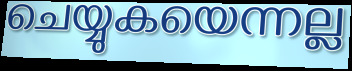
ചെയ്യുകയെന്നല്ല